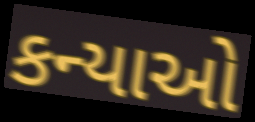
કન્યાઓ